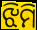
ଝିମି